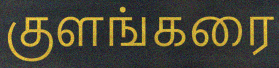
குளங்கரை